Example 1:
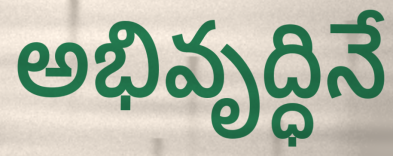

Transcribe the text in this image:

అభివృద్ధినే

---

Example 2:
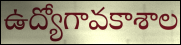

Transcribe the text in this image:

ఉద్యోగావకాశాల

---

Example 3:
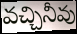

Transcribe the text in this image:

వచ్చినీవు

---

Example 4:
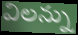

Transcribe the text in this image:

విలన్ను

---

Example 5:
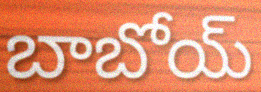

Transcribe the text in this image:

బాబోయ్